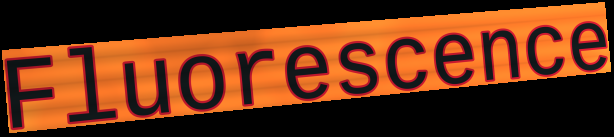
Fluorescence